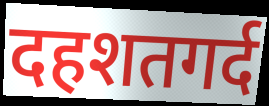
दहशतगर्द